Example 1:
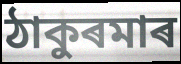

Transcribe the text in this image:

ঠাকুৰমাৰ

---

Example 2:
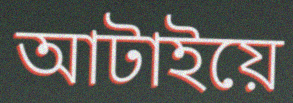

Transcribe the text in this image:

আটাইয়ে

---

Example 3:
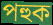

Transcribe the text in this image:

পহুক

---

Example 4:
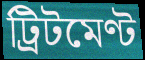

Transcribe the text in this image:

ট্ৰিটমেণ্ট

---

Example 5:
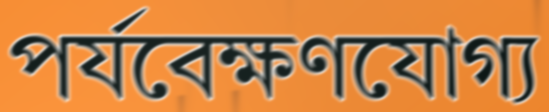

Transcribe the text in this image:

পৰ্যবেক্ষণযোগ্য